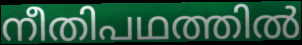
നീതിപഥത്തിൽ